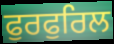
ਫੁਰਫੁਰਿਲ